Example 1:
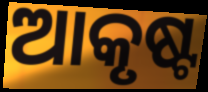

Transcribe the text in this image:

ଆକୃଷ୍ଟ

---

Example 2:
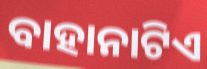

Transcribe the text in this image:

ବାହାନାଟିଏ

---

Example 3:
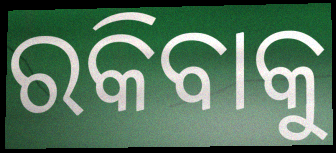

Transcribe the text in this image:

ରକିବାକୁ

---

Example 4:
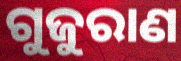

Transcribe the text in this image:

ଗୁଜୁରାଣ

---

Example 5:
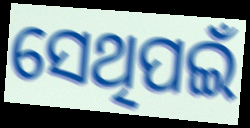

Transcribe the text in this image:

ସେଥିପଇଁ